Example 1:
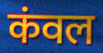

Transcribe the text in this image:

कंवल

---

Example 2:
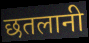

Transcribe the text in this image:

छतलानी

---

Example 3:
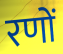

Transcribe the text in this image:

रणों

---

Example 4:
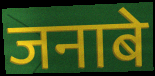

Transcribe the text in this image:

जनाबे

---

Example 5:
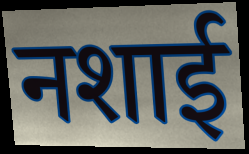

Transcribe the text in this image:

नशाई